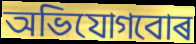
অভিযোগবোৰ